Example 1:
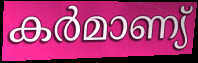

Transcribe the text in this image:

കർമാണ്യ്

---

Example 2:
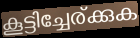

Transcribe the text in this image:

കൂട്ടിച്ചേര്ക്കുക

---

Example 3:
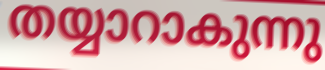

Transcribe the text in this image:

തയ്യാറാകുന്നു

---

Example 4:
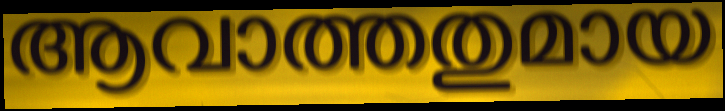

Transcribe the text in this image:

ആവാത്തതുമായ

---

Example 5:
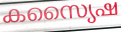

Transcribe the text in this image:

കസ്യൈഷ